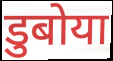
डुबोया